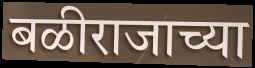
बळीराजाच्या